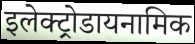
इलेक्ट्रोडायनामिक